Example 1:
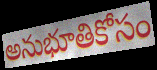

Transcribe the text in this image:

అనుభూతికోసం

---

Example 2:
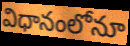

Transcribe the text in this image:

విధానంలోనూ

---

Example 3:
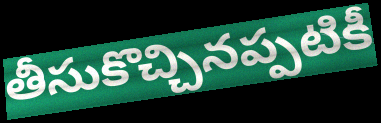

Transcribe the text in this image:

తీసుకొచ్చినప్పటికీ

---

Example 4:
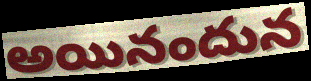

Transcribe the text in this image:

అయినందున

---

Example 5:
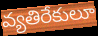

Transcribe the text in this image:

వ్యతిరేకులూ